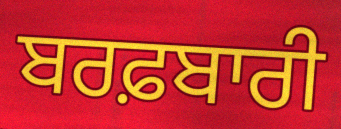
ਬਰਫ਼ਬਾਰੀ